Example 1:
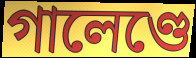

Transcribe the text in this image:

গালেণ্ডে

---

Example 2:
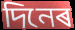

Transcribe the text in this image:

দিনেৰ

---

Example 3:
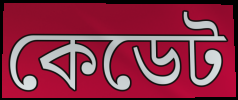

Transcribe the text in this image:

কেডেট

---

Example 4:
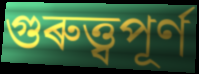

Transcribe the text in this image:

গুৰুত্ত্বপূৰ্ণ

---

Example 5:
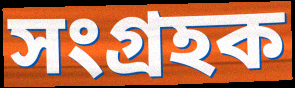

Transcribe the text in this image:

সংগ্ৰহক